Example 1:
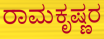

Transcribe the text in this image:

ರಾಮಕೃಷ್ಣರ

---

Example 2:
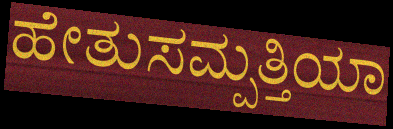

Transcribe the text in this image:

ಹೇತುಸಮ್ಪತ್ತಿಯಾ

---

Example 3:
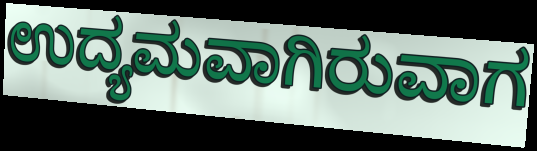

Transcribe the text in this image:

ಉದ್ಯಮವಾಗಿರುವಾಗ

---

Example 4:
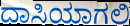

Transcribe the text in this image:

ದಾಸಿಯಾಗಲಿ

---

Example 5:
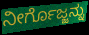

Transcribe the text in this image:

ನೀರ್ಗೊಜ್ಜನ್ನು